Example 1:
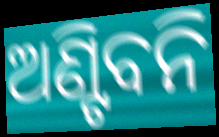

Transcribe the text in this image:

ଅଣ୍ଟିବନି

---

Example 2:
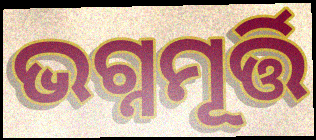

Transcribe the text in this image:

ଭଗ୍ନମୂର୍ତ୍ତି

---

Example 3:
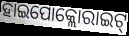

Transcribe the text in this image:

ହାଇପୋକ୍ଲୋରାଇଟ୍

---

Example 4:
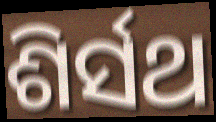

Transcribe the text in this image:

ଶିର୍ସଥ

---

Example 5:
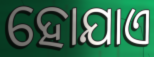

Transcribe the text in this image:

ହୋଯାଏ